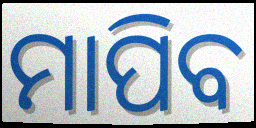
ମାପିବ